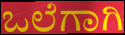
ಒಲೆಗಾಗಿ